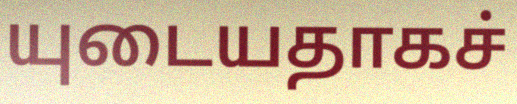
யுடையதாகச்